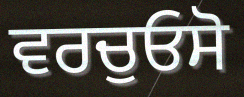
ਵਰਚੁਓਸੋ